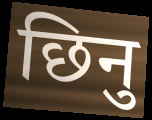
छिनु